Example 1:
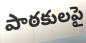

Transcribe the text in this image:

పాఠకులపై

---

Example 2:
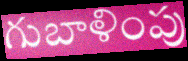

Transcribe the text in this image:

గుబాళింపు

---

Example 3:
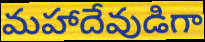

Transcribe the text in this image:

మహాదేవుడిగా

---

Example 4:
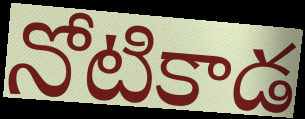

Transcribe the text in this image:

నోటికాడ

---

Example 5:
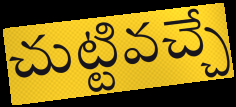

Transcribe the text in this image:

చుట్టివచ్చే